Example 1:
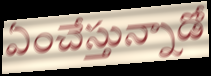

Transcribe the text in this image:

ఏంచేస్తున్నాడో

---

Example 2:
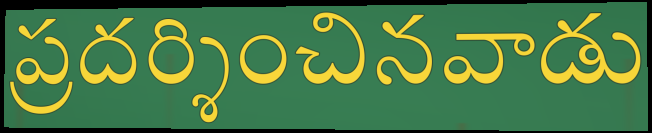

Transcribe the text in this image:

ప్రదర్శించినవాడు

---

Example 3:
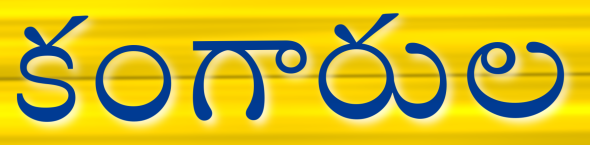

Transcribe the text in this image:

కంగారుల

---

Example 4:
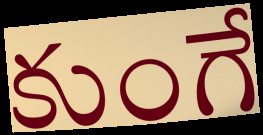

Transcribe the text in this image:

కుంగే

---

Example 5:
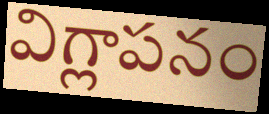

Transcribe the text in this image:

విగ్లాపనం